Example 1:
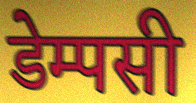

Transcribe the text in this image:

डेम्पसी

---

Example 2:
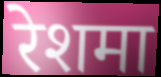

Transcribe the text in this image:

रेशमा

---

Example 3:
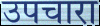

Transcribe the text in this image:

उपचारा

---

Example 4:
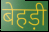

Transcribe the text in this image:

बेहड़ी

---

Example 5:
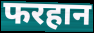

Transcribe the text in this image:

फरहान